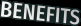
BENEFITS